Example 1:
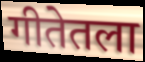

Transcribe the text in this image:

गीतेतला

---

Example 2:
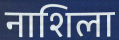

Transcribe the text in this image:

नाशिला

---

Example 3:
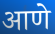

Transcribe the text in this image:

आणे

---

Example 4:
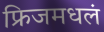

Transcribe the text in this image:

फ्रिजमधलं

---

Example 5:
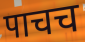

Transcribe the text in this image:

पाचच